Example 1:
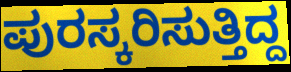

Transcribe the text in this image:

ಪುರಸ್ಕರಿಸುತ್ತಿದ್ದ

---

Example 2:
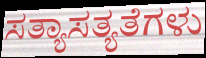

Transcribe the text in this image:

ಸತ್ಯಾಸತ್ಯತೆಗಳು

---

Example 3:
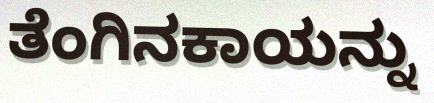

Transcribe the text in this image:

ತೆಂಗಿನಕಾಯನ್ನು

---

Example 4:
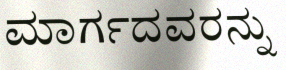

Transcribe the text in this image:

ಮಾರ್ಗದವರನ್ನು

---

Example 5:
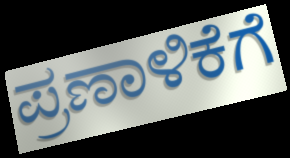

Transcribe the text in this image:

ಪ್ರಣಾಳಿಕೆಗೆ